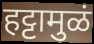
हट्टामुळं